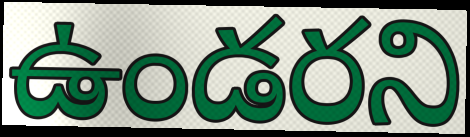
ఉండరని